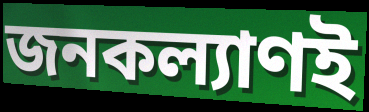
জনকল্যাণই